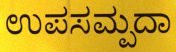
ಉಪಸಮ್ಪದಾ